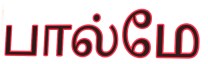
பால்மே